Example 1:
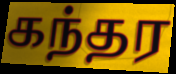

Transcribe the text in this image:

கந்தர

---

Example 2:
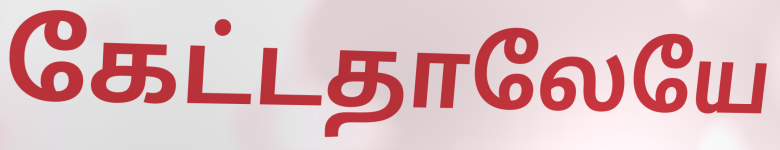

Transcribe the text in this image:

கேட்டதாலேயே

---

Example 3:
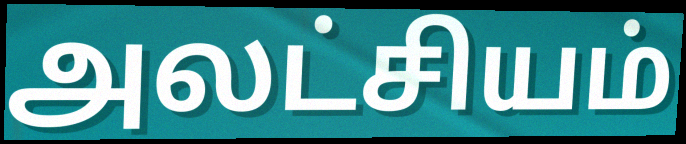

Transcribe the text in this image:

அலட்சியம்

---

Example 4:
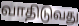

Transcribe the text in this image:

வாதிடுவது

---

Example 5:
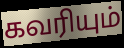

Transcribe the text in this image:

கவரியும்